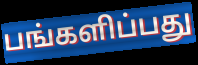
பங்களிப்பது